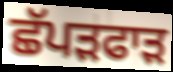
ਛੱਪੜਫਾੜ